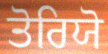
ਤੋਰਿਯੋ